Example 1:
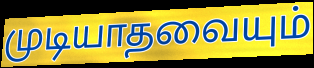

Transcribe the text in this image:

முடியாதவையும்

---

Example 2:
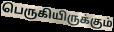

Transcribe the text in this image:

பெருகியிருக்கும்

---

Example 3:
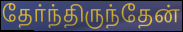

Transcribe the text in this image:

தேர்ந்திருந்தேன்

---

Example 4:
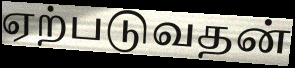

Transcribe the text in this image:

ஏற்படுவதன்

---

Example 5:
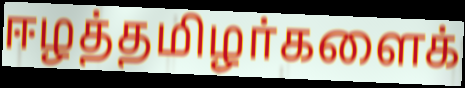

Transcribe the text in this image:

ஈழத்தமிழர்களைக்